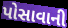
પોસાવાની